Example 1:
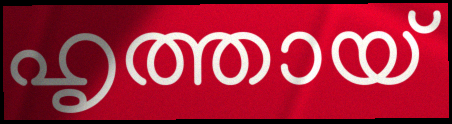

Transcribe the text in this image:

ഹൃത്തായ്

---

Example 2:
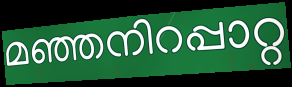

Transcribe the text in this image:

മഞ്ഞനിറപ്പാറ്റ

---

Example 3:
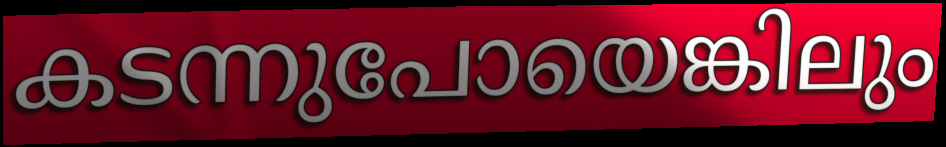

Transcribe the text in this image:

കടന്നുപോയെങ്കിലും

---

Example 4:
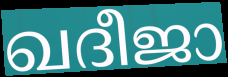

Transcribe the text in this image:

ഖദീജാ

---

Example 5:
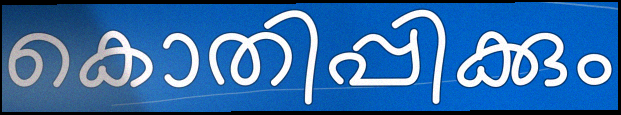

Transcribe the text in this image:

കൊതിപ്പിക്കും